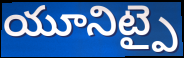
యూనిట్పై